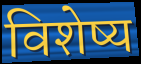
विशेष्य